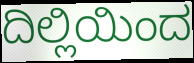
ದಿಲ್ಲಿಯಿಂದ